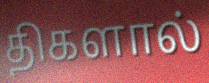
திகளால்